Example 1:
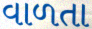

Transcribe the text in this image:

વાળતા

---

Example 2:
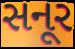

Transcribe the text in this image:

સનૂર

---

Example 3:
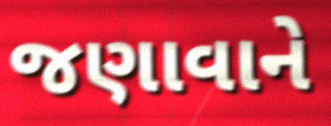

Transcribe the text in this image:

જણાવાને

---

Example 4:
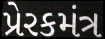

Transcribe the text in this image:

પ્રેરકમંત્ર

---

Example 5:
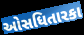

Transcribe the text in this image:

ઓસધિતારકા